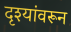
दृश्यांवरून